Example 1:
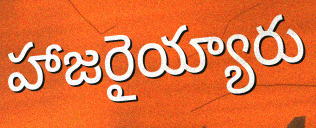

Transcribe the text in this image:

హాజరైయ్యారు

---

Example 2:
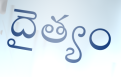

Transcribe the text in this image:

దైత్యం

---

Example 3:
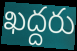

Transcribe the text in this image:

ఖద్దరు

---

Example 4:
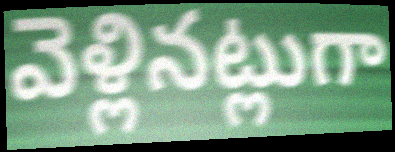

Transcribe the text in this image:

వెళ్లినట్లుగా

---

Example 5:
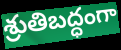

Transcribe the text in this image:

శ్రుతిబద్ధంగా